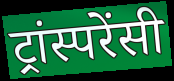
ट्रांस्परेंसी